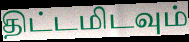
திட்டமிடவும்